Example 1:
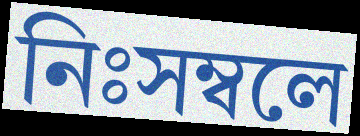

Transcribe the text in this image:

নিঃসম্বলে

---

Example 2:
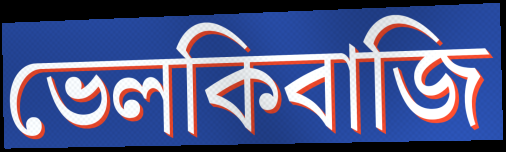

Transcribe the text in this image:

ভেলকিবাজি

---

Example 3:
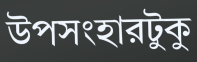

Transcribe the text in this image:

উপসংহারটুকু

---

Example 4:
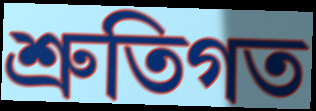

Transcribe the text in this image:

শ্রুতিগত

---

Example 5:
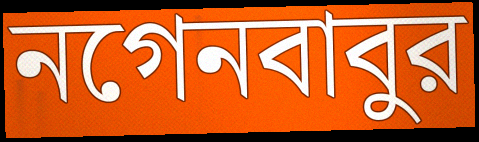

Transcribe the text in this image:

নগেনবাবুর